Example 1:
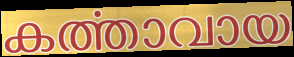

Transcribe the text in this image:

കൎത്താവായ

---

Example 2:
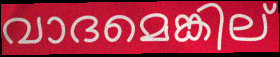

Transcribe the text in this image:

വാദമെങ്കില്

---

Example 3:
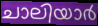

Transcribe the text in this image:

ചാലിയാർ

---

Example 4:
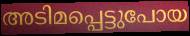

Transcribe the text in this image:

അടിമപ്പെട്ടുപോയ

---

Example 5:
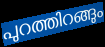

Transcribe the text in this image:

പുറത്തിറങ്ങും